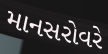
માનસરોવરે